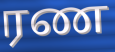
ரண